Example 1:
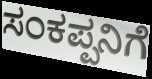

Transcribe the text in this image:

ಸಂಕಪ್ಪನಿಗೆ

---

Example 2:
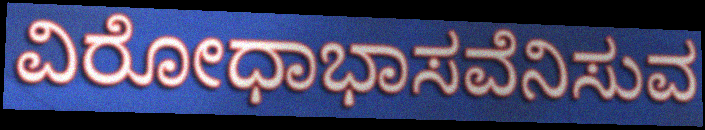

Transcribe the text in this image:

ವಿರೋಧಾಭಾಸವೆನಿಸುವ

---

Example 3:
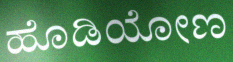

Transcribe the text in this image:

ಹೊಡಿಯೋಣ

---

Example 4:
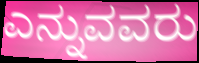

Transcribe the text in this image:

ಎನ್ನುವವರು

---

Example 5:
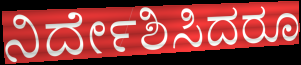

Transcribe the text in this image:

ನಿರ್ದೇಶಿಸಿದರೂ